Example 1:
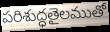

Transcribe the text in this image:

పరిశుద్ధతైలముతో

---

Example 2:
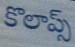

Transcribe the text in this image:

కొలాప్స్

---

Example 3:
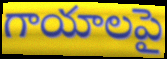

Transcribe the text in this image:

గాయాలపై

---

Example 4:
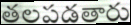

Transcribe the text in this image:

తలపడతారు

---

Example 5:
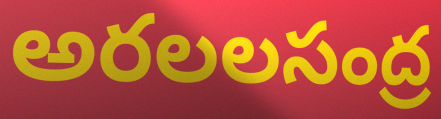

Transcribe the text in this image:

అరలలసంద్ర